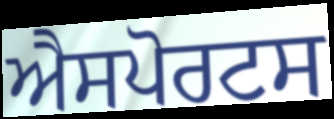
ਐਸਪੋਰਟਸ